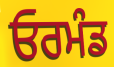
ਓਰਮੰਡ